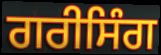
ਗਰੀਸਿੰਗ